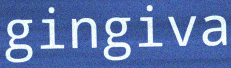
gingiva